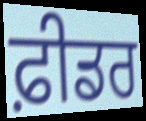
ਫ਼ੀਡਰ